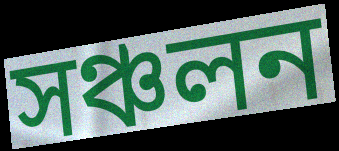
সঞ্চলন